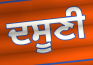
ਦਸੂਣੀ